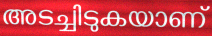
അടച്ചിടുകയാണ്